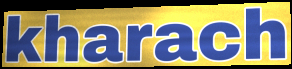
kharach